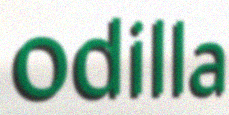
odilla